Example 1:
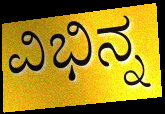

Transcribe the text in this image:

ವಿಭಿನ್ನ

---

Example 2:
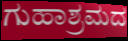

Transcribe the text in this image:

ಗುಹಾಶ್ರಮದ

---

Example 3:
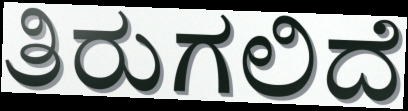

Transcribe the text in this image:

ತಿರುಗಲಿದೆ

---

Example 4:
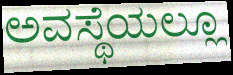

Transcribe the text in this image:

ಅವಸ್ಥೆಯಲ್ಲೂ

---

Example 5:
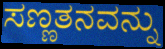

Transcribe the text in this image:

ಸಣ್ಣತನವನ್ನು